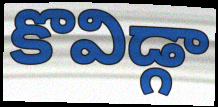
కొవిడ్గా